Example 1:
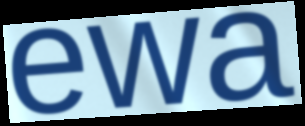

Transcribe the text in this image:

ewa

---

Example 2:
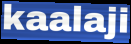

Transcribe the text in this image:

kaalaji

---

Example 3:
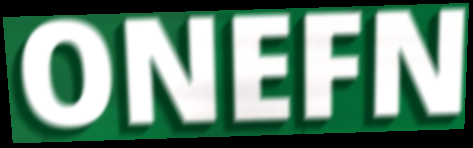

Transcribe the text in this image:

ONEFN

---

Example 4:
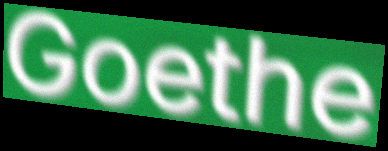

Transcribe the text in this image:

Goethe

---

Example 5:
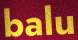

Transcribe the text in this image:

balu